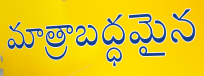
మాత్రాబద్ధమైన